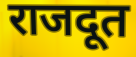
राजदूत